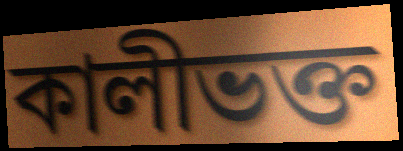
কালীভক্ত